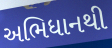
અભિધાનથી